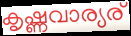
കൃഷ്ണവാര്യര്